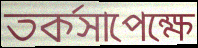
তর্কসাপেক্ষে